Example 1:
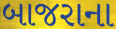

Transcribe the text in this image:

બાજરાના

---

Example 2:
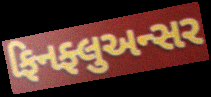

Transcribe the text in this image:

ફિનફ્લુઅન્સર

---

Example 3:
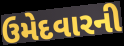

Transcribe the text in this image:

ઉમેદવારની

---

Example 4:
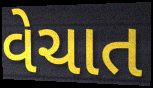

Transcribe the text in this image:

વેચાત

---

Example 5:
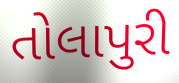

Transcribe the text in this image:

તોલાપુરી